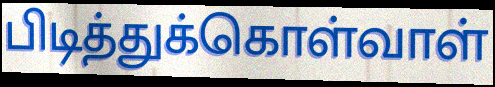
பிடித்துக்கொள்வாள்